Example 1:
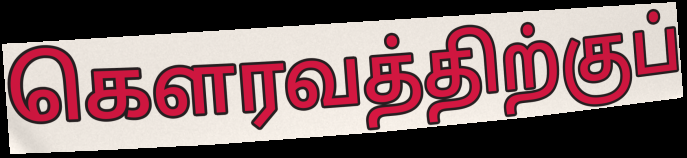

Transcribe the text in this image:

கௌரவத்திற்குப்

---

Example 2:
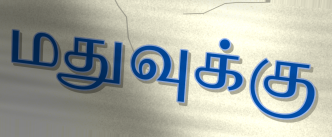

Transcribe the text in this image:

மதுவுக்கு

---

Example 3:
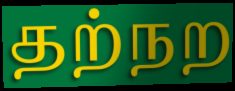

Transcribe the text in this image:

தற்நற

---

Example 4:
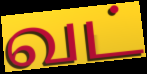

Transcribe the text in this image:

வட்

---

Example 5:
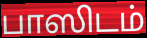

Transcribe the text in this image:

பாஸிடம்